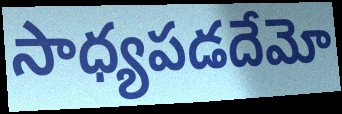
సాధ్యపడదేమో